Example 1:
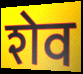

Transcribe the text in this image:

शेव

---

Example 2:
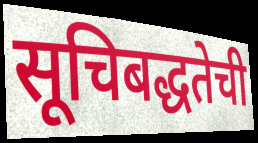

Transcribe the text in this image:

सूचिबद्धतेची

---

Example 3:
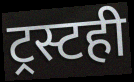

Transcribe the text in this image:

ट्रस्टही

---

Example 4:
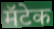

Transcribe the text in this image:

मॅटेक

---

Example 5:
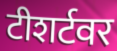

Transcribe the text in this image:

टीशर्टवर